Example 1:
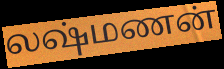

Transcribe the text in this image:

லஷ்மணன்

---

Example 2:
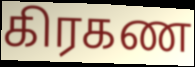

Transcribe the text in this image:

கிரகண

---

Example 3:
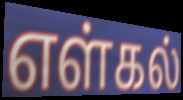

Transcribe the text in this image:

எள்கல்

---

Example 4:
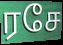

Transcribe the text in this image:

ரசே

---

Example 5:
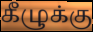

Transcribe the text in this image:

கீழுக்கு